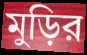
মুড়ির